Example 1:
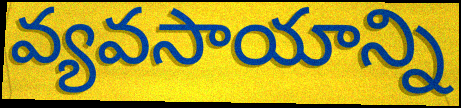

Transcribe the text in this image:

వ్యవసాయాన్ని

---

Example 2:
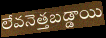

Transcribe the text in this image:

లేవనెత్తబడ్డాయి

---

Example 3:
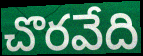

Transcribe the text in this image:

చొరవేది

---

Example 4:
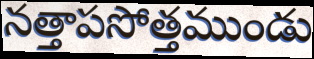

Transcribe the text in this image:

నత్తాపసోత్తముండు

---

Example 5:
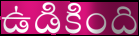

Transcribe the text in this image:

ఉడికింది